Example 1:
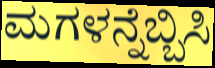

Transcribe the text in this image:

ಮಗಳನ್ನೆಬ್ಬಿಸಿ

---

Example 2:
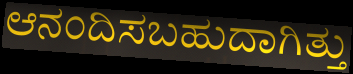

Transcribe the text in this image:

ಆನಂದಿಸಬಹುದಾಗಿತ್ತು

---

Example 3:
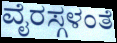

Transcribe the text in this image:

ವೈರಸ್ಗಳಂತೆ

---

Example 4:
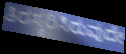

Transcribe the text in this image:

ತಿರಸ್ಕರಿಸಿರುವುದೇ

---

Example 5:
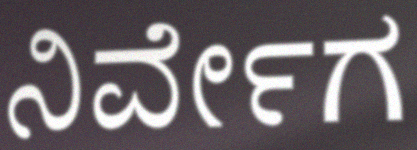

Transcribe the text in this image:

ನಿರ್ವೇಗ